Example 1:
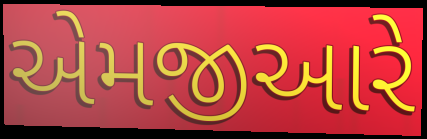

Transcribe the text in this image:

એમજીઆરે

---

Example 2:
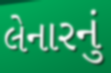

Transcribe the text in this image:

લેનારનું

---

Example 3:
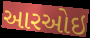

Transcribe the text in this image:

આરઓઇ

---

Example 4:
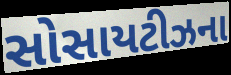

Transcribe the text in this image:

સોસાયટીઝના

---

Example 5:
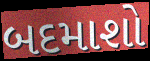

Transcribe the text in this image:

બદમાશો